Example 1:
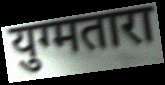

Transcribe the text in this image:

युग्मतारा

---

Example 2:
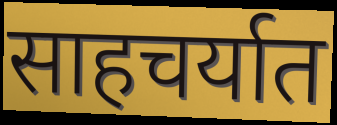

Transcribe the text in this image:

साहचर्यात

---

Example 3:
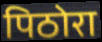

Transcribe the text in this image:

पिठोरा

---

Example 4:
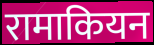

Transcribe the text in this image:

रामाकियन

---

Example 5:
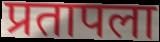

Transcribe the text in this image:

प्रतापला